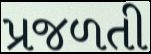
પ્રજળતી